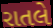
રાતલે